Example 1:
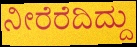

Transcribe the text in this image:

ನೀರೆರೆದಿದ್ದು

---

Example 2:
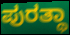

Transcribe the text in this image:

ಪುರತ್ಥಾ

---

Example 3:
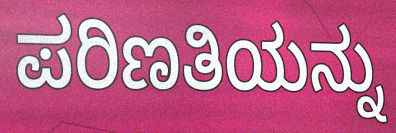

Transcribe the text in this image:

ಪರಿಣತಿಯನ್ನು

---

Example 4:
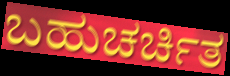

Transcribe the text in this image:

ಬಹುಚರ್ಚಿತ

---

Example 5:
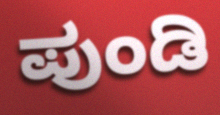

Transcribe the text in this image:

ಪುಂಡಿ